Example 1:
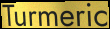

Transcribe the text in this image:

Turmeric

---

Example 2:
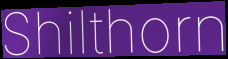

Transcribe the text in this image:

Shilthorn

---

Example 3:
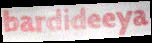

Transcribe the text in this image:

bardideeya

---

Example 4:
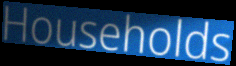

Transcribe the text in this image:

Households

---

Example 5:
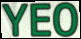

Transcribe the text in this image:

YEO